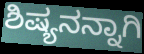
ಶಿಷ್ಯನನ್ನಾಗಿ